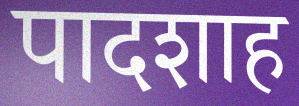
पादशाह